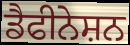
ਡੈਫੀਨੇਸ਼ਨ